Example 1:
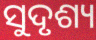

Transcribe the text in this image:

ସୁଦୃଶ୍ୟ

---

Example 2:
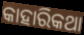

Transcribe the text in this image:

କାହାରିକଥା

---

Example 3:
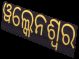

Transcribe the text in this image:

ୱଲ୍କେନଶ୍ୱର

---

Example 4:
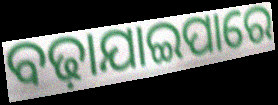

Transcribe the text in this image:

ବଢ଼ାଯାଇପାରେ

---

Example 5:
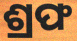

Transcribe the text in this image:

ଶ୍ରଫ